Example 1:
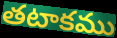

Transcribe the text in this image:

తటాకము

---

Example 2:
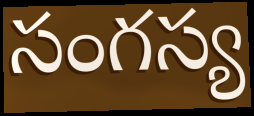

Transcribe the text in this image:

సంగస్య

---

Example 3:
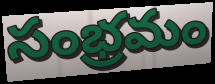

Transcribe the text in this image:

సంభ్రమం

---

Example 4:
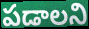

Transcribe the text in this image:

పడాలని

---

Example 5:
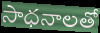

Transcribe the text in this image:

సాధనాలతో